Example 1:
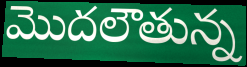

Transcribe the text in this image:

మొదలౌతున్న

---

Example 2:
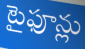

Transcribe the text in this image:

టైఫూన్లు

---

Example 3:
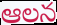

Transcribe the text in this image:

ఆలన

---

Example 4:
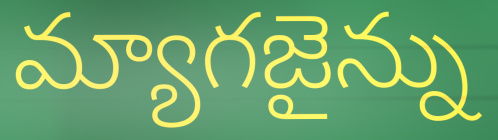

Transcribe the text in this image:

మ్యాగజైన్ను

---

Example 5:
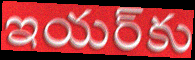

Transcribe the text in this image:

ఇయర్‌కు